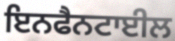
ਇਨਫੈਨਟਾਈਲ